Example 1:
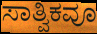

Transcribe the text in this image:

ಸಾತ್ವಿಕವೂ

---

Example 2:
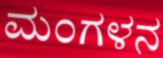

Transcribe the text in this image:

ಮಂಗಳನ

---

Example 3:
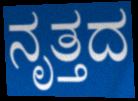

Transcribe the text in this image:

ನೃತ್ತದ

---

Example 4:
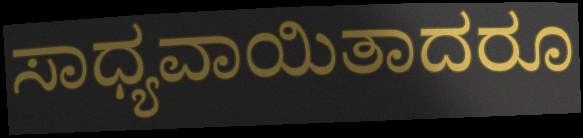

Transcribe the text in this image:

ಸಾಧ್ಯವಾಯಿತಾದರೂ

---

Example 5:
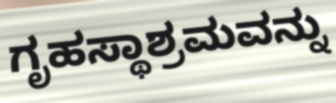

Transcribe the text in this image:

ಗೃಹಸ್ಥಾಶ್ರಮವನ್ನು